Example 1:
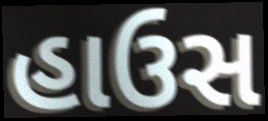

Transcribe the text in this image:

હાઉસ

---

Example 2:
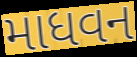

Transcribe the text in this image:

માધવન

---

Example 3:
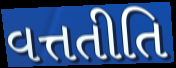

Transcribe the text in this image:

વત્તતીતિ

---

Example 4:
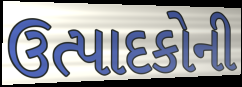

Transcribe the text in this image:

ઉત્પાદકોની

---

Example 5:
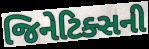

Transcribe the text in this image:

જિનેટિક્સની